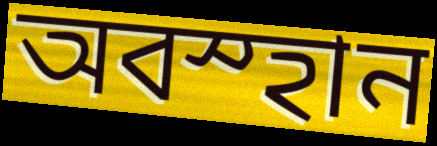
অবস্হান